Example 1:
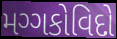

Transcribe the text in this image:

મગ્ગકોવિદો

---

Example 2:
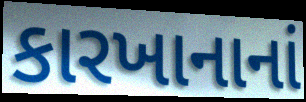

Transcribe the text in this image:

કારખાનાનાં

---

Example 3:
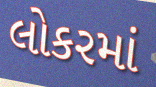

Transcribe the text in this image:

લોકરમાં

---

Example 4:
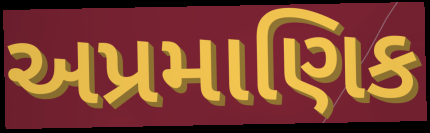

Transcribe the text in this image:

અપ્રમાણિક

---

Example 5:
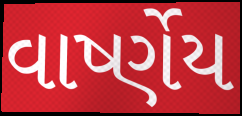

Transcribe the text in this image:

વાર્ષ્ણેય